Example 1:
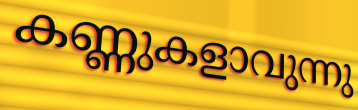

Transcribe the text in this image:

കണ്ണുകളാവുന്നു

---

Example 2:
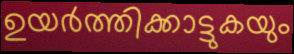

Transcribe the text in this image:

ഉയർത്തിക്കാട്ടുകയും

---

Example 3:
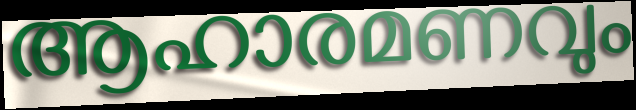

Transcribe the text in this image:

ആഹാരമണവും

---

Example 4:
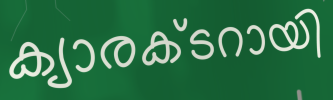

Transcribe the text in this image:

ക്യാരക്ടറായി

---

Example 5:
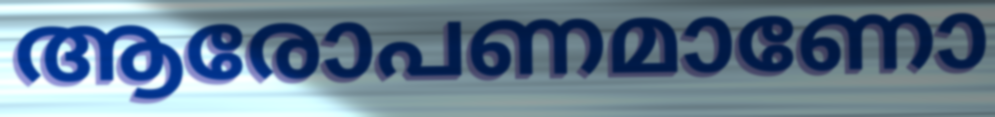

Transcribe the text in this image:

ആരോപണമാണോ